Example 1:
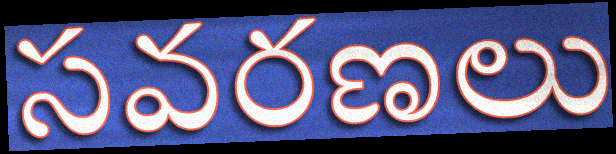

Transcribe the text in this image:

సవరణలు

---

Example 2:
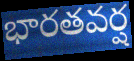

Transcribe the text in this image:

భారతవర్ష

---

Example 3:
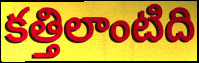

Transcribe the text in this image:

కత్తిలాంటిది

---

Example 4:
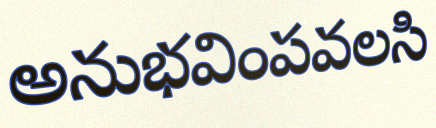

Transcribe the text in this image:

అనుభవింపవలసి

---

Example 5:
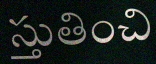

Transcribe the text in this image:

స్తుతించి